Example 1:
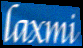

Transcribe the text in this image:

laxmi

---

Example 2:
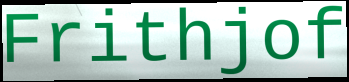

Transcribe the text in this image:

Frithjof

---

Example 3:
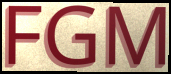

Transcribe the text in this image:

FGM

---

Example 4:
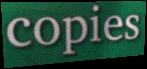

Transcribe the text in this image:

copies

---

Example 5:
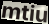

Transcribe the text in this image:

mtiu